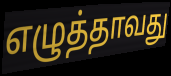
எழுத்தாவது